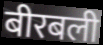
बीरबली